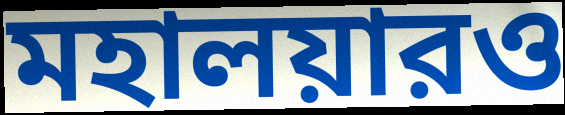
মহালয়ারও